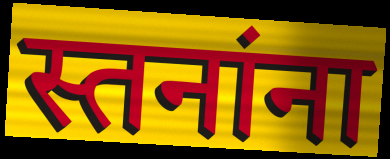
स्तनांना